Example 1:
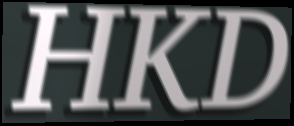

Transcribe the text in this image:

HKD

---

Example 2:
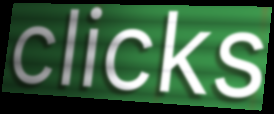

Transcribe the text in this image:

clicks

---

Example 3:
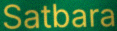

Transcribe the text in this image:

Satbara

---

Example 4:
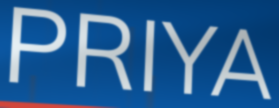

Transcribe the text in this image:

PRIYA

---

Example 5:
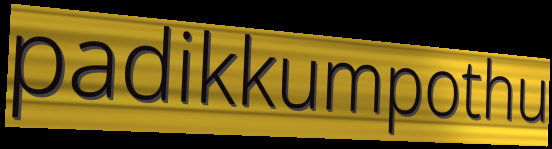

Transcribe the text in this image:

padikkumpothu